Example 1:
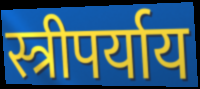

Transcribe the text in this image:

स्त्रीपर्याय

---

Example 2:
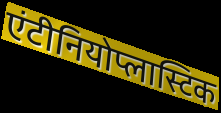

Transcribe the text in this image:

एंटीनियोप्लास्टिक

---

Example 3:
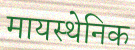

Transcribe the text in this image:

मायस्थेनिक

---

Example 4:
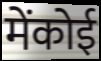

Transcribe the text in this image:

मेंकोई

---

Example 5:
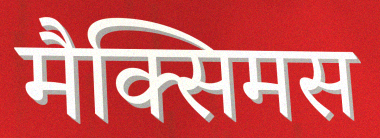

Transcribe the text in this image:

मैक्सिमस